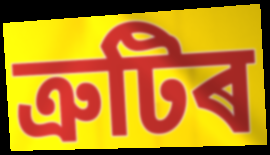
ত্ৰুটিৰ